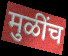
मुळींच